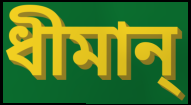
ধীমান্